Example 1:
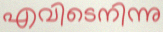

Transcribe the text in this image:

എവിടെനിന്നു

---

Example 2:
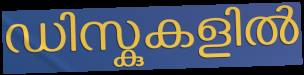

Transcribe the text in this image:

ഡിസ്കുകളിൽ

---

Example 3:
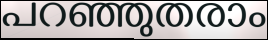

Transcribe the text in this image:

പറഞ്ഞുതരാം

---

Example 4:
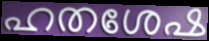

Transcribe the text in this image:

ഹതശേഷ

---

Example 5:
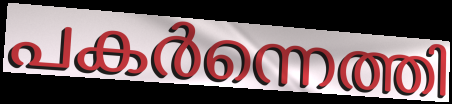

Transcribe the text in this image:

പകർന്നെത്തി